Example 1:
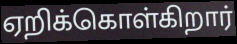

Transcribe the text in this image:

ஏறிக்கொள்கிறார்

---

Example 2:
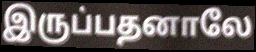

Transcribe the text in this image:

இருப்பதனாலே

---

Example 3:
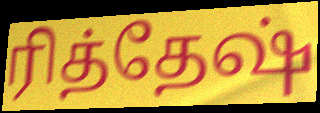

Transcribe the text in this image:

ரித்தேஷ்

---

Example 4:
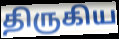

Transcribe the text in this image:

திருகிய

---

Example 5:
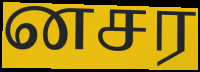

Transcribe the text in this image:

னசர